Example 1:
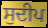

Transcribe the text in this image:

ਸੁਦੀਪ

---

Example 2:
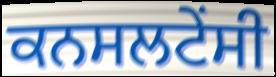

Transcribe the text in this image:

ਕਨਸਲਟੇਂਸੀ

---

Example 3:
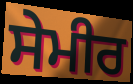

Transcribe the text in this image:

ਸੇਮੀਰ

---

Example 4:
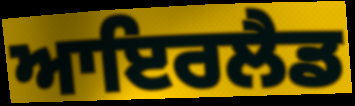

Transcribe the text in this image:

ਆਇਰਲੈਡ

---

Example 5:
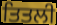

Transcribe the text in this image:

ਤਿਤਲੀ